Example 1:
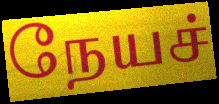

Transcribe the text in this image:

நேயச்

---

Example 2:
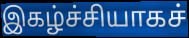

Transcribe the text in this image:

இகழ்ச்சியாகச்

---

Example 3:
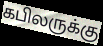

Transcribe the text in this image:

கபிலருக்கு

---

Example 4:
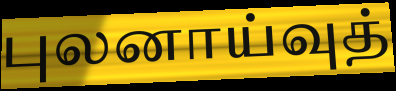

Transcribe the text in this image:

புலனாய்வுத்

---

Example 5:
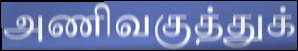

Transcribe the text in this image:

அணிவகுத்துக்